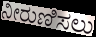
ನೀರುಣಿಸಲು